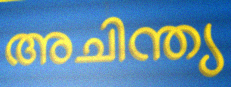
അചിന്ത്യ